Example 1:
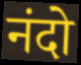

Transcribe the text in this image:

नंदो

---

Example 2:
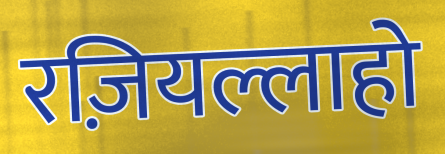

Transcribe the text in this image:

रज़ियल्लाहो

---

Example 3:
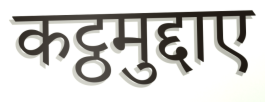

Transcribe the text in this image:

कट्ठमुद्दाए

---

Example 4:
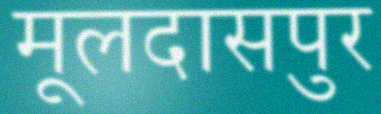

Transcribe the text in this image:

मूलदासपुर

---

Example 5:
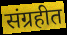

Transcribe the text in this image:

संग्रहीत